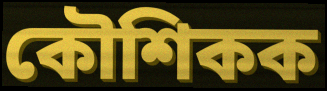
কৌশিকক